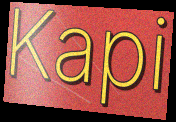
Kapi